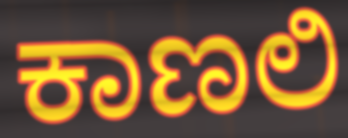
ಕಾಣಲಿ